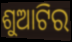
ଶୁଆଟିର